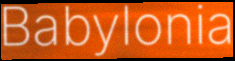
Babylonia